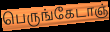
பெருங்கேடாஞ்